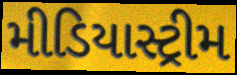
મીડિયાસ્ટ્રીમ